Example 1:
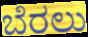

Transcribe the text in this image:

ಬೆರಲು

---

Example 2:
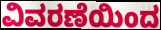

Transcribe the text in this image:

ವಿವರಣೆಯಿಂದ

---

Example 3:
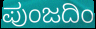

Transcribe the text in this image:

ಪುಂಜದಿಂ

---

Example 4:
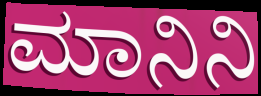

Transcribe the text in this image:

ಮಾನಿನಿ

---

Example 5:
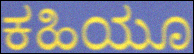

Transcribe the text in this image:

ಕಹಿಯೂ